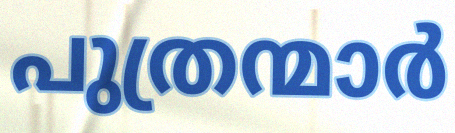
പുത്രന്മാർ